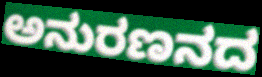
ಅನುರಣನದ